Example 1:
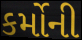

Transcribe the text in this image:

કર્મોની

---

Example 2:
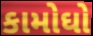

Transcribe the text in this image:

કામોઘો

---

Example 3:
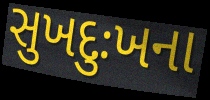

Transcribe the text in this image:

સુખદુઃખના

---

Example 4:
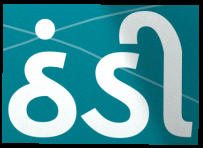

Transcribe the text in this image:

ઠંડી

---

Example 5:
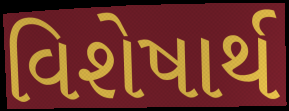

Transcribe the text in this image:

વિશેષાર્થ